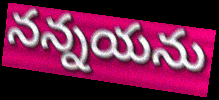
నన్నయను